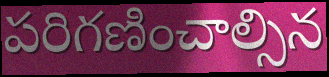
పరిగణించాల్సిన